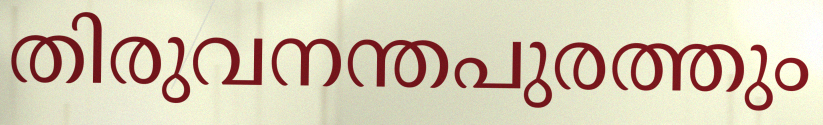
തിരുവനന്തപുരത്തും